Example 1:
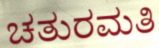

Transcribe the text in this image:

ಚತುರಮತಿ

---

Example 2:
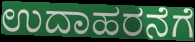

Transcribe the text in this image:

ಉದಾಹರನೆಗೆ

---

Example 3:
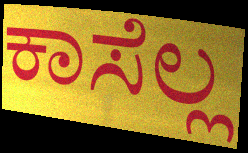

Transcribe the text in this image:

ಕಾಸೆಲ್ಲ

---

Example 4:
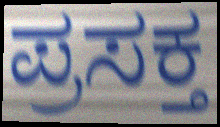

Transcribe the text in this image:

ಪ್ರಸಕ್ತ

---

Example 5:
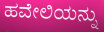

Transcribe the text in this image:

ಹವೇಲಿಯನ್ನು